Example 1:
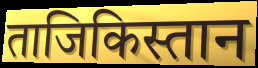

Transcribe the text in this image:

ताजिकिस्तान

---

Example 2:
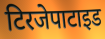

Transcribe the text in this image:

टिरजेपाटाइड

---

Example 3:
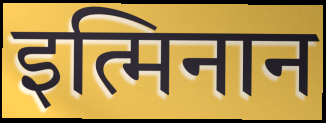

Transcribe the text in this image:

इत्मिनान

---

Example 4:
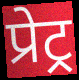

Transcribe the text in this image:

प्रेट्र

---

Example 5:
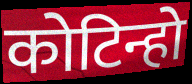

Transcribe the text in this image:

कोटिन्हो